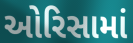
ઓરિસામાં